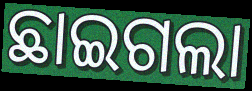
ଛାଇଗଲା